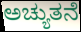
ಅಚ್ಯುತನೆ